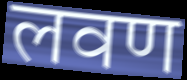
लवण